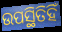
ଉପସ୍ଥିତିହିଁ